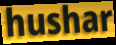
hushar